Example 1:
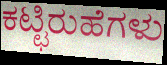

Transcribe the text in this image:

ಕಟ್ಟಿರುಹೆಗಳು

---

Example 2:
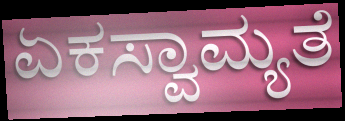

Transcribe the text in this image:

ಏಕಸ್ವಾಮ್ಯತೆ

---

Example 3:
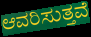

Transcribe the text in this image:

ಆವರಿಸುತ್ತವೆ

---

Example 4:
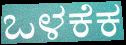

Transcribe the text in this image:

ಒಳಕೆಕ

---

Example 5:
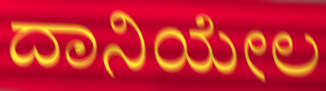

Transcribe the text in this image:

ದಾನಿಯೇಲ